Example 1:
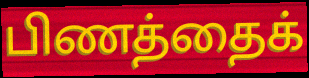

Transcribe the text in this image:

பிணத்தைக்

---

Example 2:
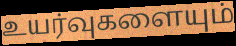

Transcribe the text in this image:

உயர்வுகளையும்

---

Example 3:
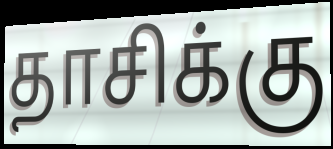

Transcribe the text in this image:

தாசிக்கு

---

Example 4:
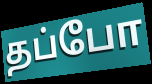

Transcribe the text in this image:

தப்போ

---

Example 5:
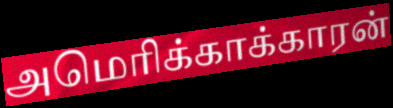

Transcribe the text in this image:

அமெரிக்காக்காரன்